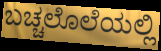
ಬಚ್ಚಲೊಲೆಯಲ್ಲಿ